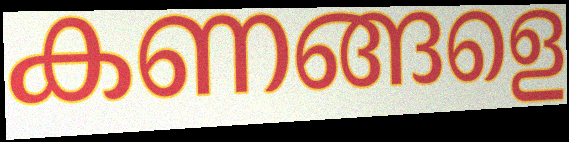
കണങ്ങളെ